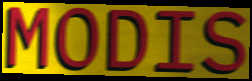
MODIS